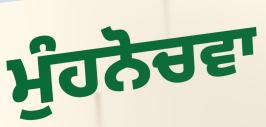
ਮੁੰਹਨੋਚਵਾ